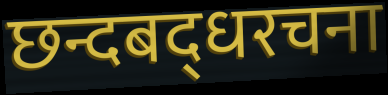
छन्दबद्धरचना